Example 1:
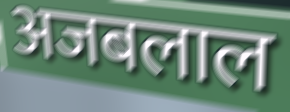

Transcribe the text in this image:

अजबलाल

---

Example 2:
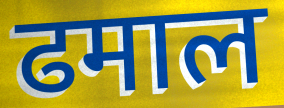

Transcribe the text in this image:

ढमाल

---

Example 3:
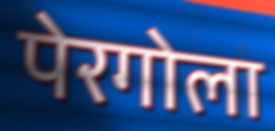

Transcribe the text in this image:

पेरगोला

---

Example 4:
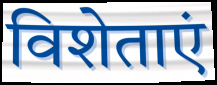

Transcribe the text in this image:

विशेताएं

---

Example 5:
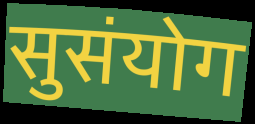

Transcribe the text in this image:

सुसंयोग